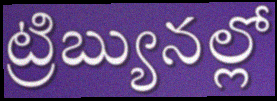
ట్రిబ్యునల్లో